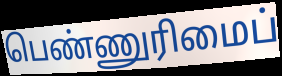
பெண்ணுரிமைப்